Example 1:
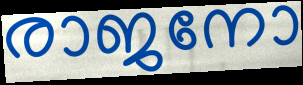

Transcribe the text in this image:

രാജനോ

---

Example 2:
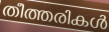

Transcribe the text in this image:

തീത്തരികൾ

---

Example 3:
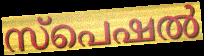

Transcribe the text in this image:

സ്പെഷൽ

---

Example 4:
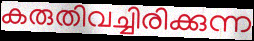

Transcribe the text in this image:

കരുതിവച്ചിരിക്കുന്ന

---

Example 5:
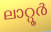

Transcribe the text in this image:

ലാറ്റൂർ